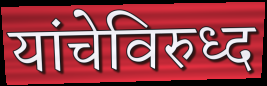
यांचेविरुध्द